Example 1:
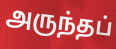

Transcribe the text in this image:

அருந்தப்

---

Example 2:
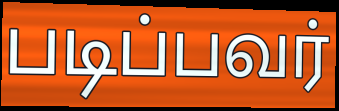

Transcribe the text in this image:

படிப்பவர்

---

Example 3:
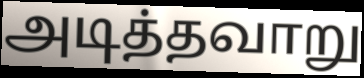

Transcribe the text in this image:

அடித்தவாறு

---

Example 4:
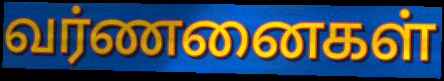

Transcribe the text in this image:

வர்ணனைகள்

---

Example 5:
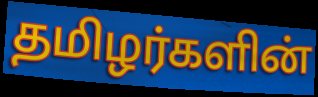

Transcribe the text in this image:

தமிழர்களின்